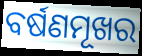
ବର୍ଷଣମୂଖର